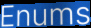
Enums